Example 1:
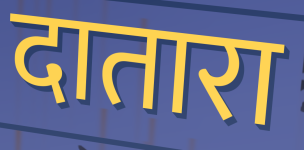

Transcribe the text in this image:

दातारा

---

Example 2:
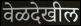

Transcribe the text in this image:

वेळदेखील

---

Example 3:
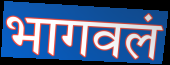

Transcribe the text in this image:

भागवलं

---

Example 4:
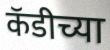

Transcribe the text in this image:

कॅडीच्या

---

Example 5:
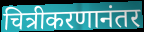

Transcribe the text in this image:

चित्रीकरणानंतर